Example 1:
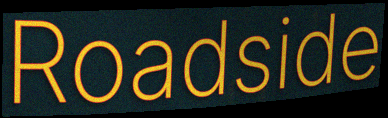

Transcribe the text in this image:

Roadside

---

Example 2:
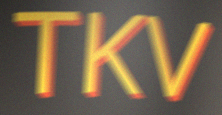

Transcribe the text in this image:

TKV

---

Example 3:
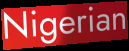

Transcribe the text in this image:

Nigerian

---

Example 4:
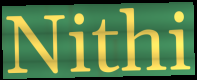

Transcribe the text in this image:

Nithi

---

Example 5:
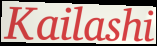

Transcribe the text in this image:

Kailashi